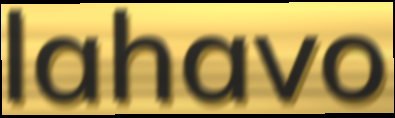
lahavo